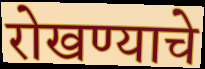
रोखण्याचे